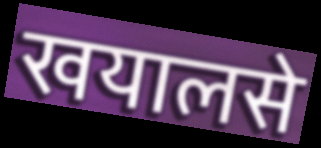
खयालसे